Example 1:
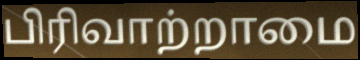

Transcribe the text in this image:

பிரிவாற்றாமை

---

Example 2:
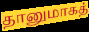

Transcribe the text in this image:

தானுமாகத்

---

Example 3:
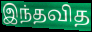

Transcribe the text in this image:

இந்தவித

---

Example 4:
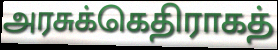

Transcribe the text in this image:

அரசுக்கெதிராகத்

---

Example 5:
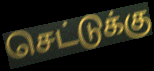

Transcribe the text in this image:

செட்டுக்கு